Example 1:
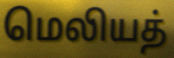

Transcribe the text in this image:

மெலியத்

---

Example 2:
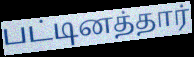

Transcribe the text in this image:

பட்டினத்தார்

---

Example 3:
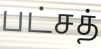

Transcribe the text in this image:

பட்சத்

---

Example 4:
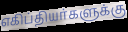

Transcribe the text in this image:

எகிப்தியர்களுக்கு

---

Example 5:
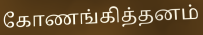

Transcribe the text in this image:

கோணங்கித்தனம்